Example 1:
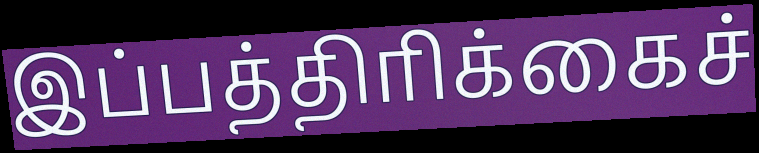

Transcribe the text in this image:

இப்பத்திரிக்கைச்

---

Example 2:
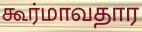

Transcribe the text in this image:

கூர்மாவதார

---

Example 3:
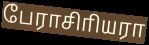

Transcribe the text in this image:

பேராசிரியரா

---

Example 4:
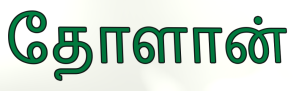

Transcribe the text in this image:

தோளான்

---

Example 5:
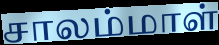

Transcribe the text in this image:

சாலம்மாள்